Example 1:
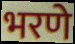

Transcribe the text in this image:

भरणे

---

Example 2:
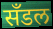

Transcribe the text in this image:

सँडल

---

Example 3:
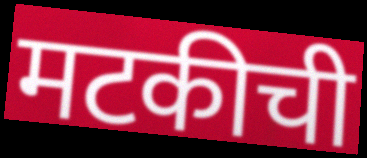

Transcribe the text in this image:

मटकीची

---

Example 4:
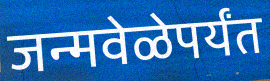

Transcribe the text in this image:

जन्मवेळेपर्यंत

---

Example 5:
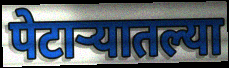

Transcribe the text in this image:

पेटाऱ्यातल्या